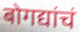
बोगद्यांचं